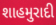
શાહમુરાદી